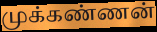
முக்கண்ணன்